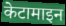
केटामाइन